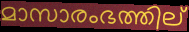
മാസാരംഭത്തില്